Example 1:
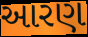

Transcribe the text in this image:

આરણ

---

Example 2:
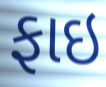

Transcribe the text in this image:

ફાઇ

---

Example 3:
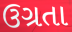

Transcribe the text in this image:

ઉગ્રતા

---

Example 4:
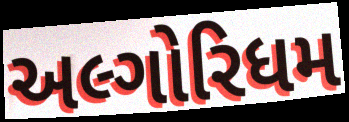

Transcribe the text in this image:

અલ્ગોરિધમ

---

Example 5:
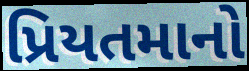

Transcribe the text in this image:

પ્રિયતમાનો